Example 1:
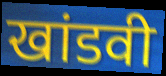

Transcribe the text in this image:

खांडवी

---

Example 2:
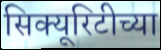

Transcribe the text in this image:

सिक्यूरिटीच्या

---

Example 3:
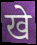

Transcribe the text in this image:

खे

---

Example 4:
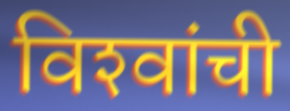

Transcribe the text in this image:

विश्वांची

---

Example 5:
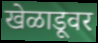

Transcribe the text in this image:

खेळाडूवर